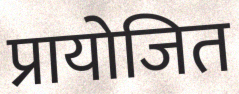
प्रायोजित